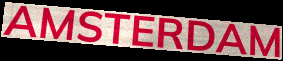
AMSTERDAM